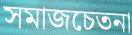
সমাজচেতনা